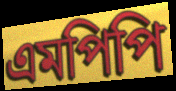
এমপিপি